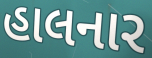
હાલનાર